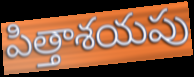
పిత్తాశయపు